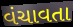
વંચાવતા